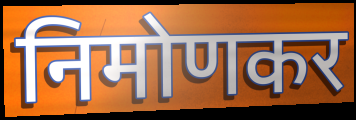
निमोणकर